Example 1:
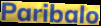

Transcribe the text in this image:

Paribalo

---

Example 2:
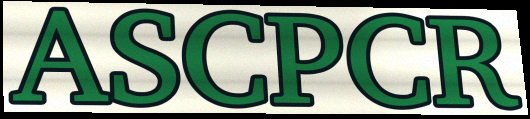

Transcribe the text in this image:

ASCPCR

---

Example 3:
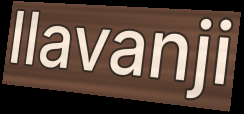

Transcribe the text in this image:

Ilavanji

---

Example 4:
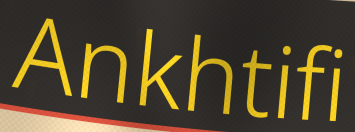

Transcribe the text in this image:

Ankhtifi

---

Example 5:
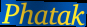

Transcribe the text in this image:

Phatak